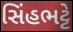
સિંહભટ્ટે